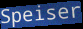
Speiser